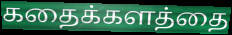
கதைக்களத்தை